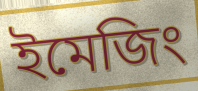
ইমেজিং